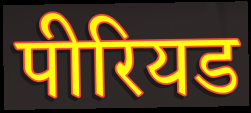
पीरियड